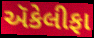
ઍકેલીફા